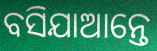
ବସିଯାଆନ୍ତେ